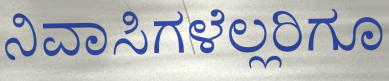
ನಿವಾಸಿಗಳೆಲ್ಲರಿಗೂ